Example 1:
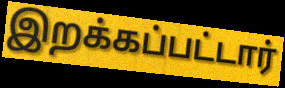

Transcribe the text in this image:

இறக்கப்பட்டார்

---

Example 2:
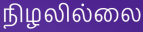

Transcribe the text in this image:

நிழலில்லை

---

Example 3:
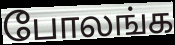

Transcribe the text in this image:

போலங்க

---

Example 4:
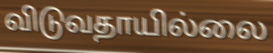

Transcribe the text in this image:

விடுவதாயில்லை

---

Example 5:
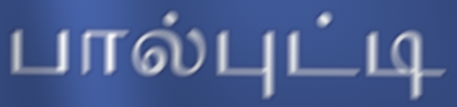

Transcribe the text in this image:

பால்புட்டி